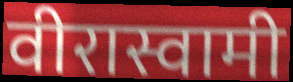
वीरास्वामी